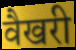
वैखरी